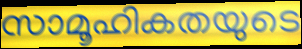
സാമൂഹികതയുടെ